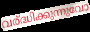
വര്ദ്ധിക്കുന്നുവോ